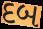
દબ